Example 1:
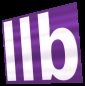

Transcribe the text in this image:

llb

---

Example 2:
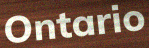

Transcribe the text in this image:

Ontario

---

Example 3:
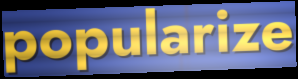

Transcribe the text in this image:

popularize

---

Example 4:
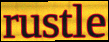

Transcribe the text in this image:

rustle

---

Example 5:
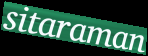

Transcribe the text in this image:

sitaraman